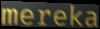
mereka